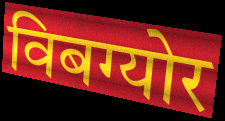
विबग्योर